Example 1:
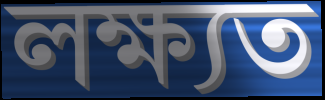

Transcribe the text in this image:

লক্ষ্যত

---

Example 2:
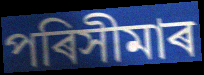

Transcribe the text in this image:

পৰিসীমাৰ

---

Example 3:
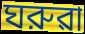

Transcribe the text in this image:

ঘৰুৱা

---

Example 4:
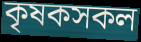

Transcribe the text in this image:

কৃষকসকল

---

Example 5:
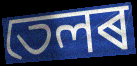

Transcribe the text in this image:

তেলৰ